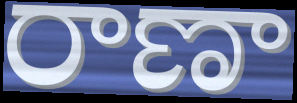
రాణా